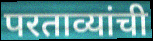
परताव्यांची